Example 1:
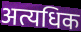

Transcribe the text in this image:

अत्यधिक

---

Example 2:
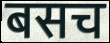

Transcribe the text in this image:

बसच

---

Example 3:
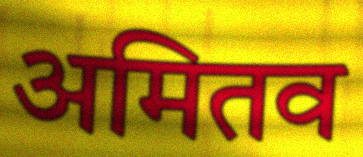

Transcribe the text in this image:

अमितव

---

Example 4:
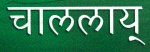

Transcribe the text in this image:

चाललाय्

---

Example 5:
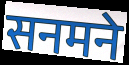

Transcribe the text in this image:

सनमने